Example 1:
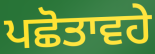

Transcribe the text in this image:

ਪਛੋਤਾਵਹੇ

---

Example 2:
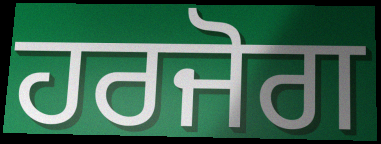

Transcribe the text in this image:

ਹਰਜੋਗ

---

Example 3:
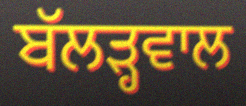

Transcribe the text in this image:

ਬੱਲੜ੍ਹਵਾਲ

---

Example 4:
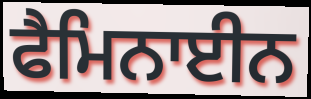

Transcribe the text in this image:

ਫੈਮਿਨਾਈਨ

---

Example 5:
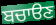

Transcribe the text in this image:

ਬਚਾੳਣ